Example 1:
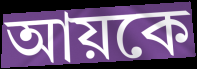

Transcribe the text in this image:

আয়কে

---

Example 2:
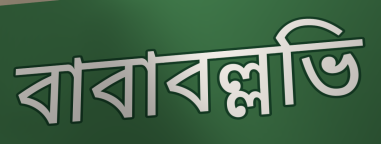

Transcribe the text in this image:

বাবাবল্লভি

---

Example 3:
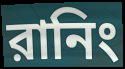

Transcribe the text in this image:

রানিং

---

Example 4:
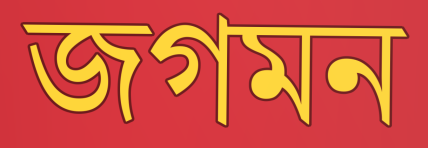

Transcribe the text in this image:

জগমন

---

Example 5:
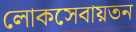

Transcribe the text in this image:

লোকসেবায়তন